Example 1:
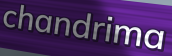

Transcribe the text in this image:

chandrima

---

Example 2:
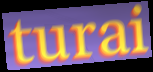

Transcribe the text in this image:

turai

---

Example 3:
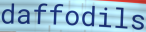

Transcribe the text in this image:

daffodils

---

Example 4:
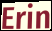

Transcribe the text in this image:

Erin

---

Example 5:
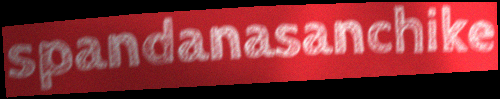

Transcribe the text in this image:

spandanasanchike